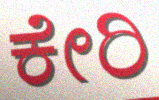
ಕೇರಿ